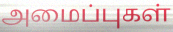
அமைப்புகள்